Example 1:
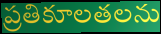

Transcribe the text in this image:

ప్రతికూలతలను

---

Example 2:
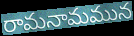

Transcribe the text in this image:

రామనామమున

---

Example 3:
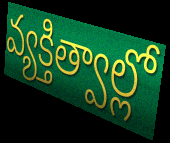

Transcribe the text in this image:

వ్యక్తిత్వాల్లో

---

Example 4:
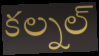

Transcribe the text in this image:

కల్నల్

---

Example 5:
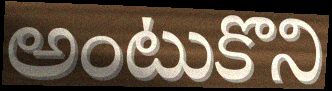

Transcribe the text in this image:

అంటుకొని